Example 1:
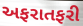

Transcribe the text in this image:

અફરાતફરી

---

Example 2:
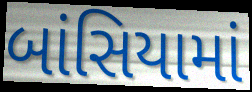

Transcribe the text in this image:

બાંસિયામાં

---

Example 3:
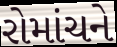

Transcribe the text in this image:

રોમાંચને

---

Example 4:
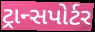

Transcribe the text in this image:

ટ્રાન્સપોર્ટર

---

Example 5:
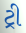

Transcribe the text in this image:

ટ્રી